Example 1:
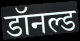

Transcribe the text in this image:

डॉनल्ड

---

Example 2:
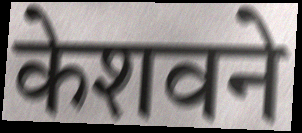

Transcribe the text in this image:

केशवने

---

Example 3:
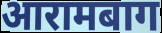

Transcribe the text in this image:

आरामबाग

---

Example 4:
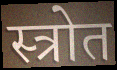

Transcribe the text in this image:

स्त्रोत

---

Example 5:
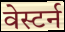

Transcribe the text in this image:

वेस्टर्न